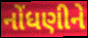
નોંધણીને